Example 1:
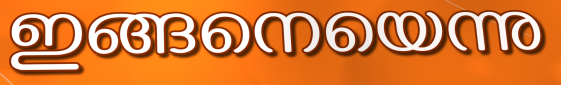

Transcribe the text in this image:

ഇങ്ങനെയെന്നു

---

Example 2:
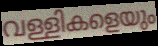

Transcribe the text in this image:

വള്ളികളെയും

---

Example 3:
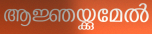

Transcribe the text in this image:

ആജ്ഞയ്ക്കുമേൽ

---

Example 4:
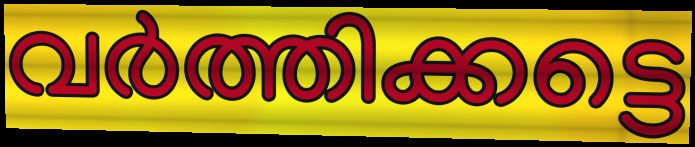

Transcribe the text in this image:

വർത്തിക്കട്ടെ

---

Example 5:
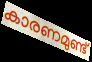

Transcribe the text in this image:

കാരണമുണ്ട്